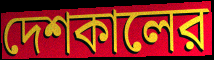
দেশকালের